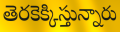
తెరకెక్కిస్తున్నారు